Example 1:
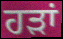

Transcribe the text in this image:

ਹੜਾਂ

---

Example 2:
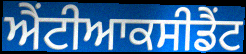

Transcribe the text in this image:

ਐਂਟੀਆਕਸੀਡੈਂਟ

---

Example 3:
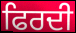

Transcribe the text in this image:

ਫਿਰਦੀ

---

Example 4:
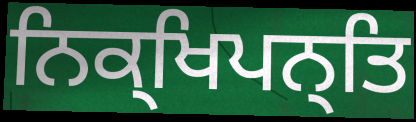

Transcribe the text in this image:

ਨਿਕ੍ਖਿਪਨ੍ਤਿ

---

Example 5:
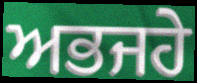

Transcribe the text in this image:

ਅਭਜਹੇ